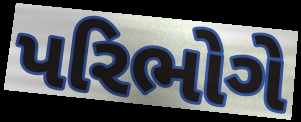
પરિભોગે